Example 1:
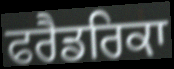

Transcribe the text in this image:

ਫਰੈਡਰਿਕਾ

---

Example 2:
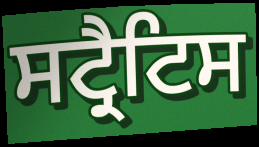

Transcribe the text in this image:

ਸਟ੍ਰੈਟਿਸ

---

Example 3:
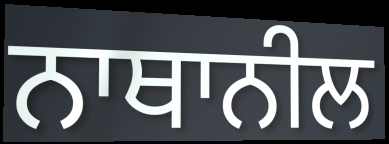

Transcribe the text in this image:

ਨਾਥਾਨੀਲ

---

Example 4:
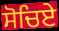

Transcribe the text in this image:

ਸੋਚਿਏ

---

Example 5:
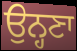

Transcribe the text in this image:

ਉਨ੍ਹਣਾ